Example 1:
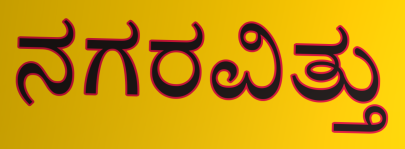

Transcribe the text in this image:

ನಗರವಿತ್ತು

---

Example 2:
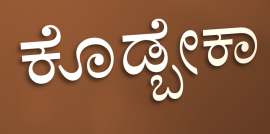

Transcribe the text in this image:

ಕೊಡ್ಬೇಕಾ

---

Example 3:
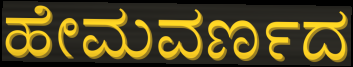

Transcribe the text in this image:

ಹೇಮವರ್ಣದ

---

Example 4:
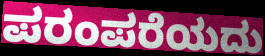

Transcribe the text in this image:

ಪರಂಪರೆಯದು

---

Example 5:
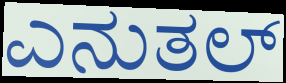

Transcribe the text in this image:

ಎನುತಲ್